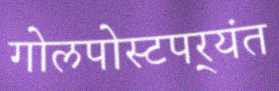
गोलपोस्टपर्यंत